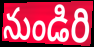
నుండిరి